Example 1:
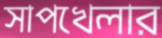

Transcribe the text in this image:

সাপখেলার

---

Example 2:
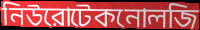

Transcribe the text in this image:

নিউরোটেকনোলজি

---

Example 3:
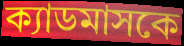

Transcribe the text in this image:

ক্যাডমাসকে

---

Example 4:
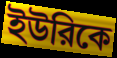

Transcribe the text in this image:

ইউরিকে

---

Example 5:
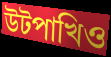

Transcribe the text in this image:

উটপাখিও